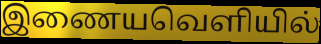
இணையவெளியில்